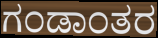
ಗಂಡಾಂತರ